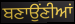
ਬਣਾਉਂਣੀਆਂ